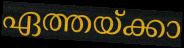
ഏത്തയ്ക്കാ